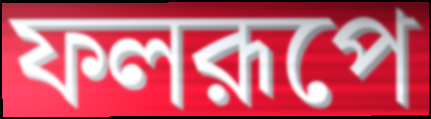
ফলরূপে